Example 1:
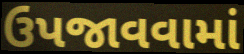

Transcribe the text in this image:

ઉપજાવવામાં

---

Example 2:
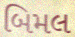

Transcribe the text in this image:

બિમલ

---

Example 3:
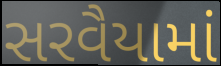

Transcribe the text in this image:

સરવૈયામાં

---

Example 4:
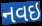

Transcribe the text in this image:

નવઇ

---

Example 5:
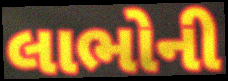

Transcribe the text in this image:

લાભોની